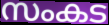
സംകട